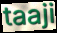
taaji